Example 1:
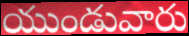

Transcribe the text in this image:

యుండువారు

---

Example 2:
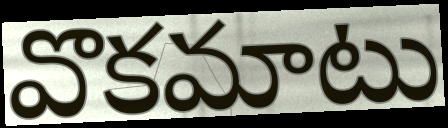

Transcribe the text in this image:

వొకమాటు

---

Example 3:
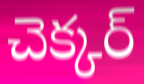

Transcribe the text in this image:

చెక్కర్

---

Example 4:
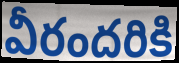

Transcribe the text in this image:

వీరందరికి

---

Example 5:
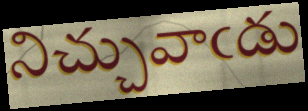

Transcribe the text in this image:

నిచ్చువాఁడు